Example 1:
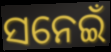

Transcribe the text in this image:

ସନେଇଁ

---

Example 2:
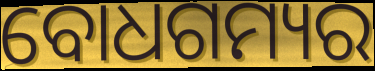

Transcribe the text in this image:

ବୋଧଗମ୍ୟର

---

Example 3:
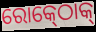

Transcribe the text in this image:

ରୋକ୍‍ଠୋକ୍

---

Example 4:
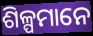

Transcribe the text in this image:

ଶିଳ୍ପମାନେ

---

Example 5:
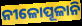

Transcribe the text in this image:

ନୀଳୋପୂଳାନି